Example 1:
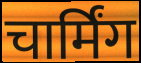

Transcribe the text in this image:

चार्मिंग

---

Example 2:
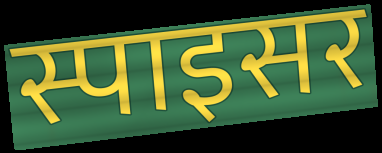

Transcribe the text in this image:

स्पाइसर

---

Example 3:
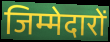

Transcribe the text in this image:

जिम्मेदारों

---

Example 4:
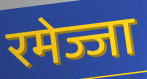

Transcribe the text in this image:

रमेज्जा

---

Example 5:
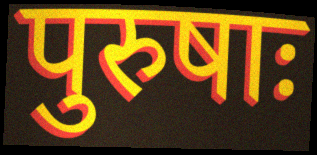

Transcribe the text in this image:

पुरुषाः